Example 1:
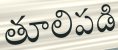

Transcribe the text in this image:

తూలిపడి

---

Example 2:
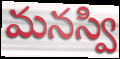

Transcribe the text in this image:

మనస్వి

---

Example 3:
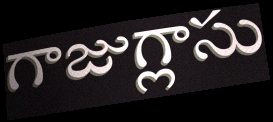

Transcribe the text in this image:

గాజుగ్లాసు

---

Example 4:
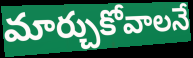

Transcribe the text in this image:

మార్చుకోవాలనే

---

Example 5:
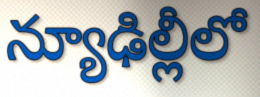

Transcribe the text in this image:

న్యూఢిల్లీలో